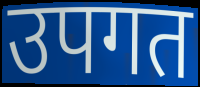
उपगत